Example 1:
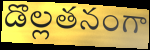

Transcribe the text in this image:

డొల్లతనంగా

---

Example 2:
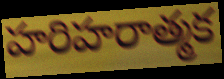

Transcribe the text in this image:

హరిహరాత్మక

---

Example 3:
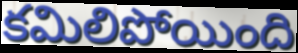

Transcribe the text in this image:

కమిలిపోయింది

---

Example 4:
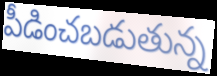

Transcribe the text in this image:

పీడించబడుతున్న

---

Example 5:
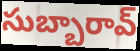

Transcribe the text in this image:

సుబ్బారావ్